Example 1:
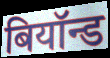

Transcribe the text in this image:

बियॉन्ड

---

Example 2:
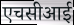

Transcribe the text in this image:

एचसीआई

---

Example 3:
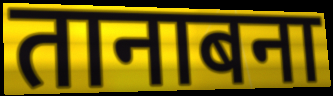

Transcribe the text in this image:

तानाबना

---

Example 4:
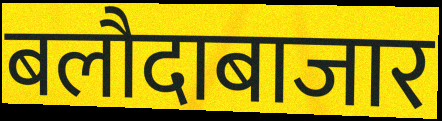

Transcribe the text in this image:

बलौदाबाजार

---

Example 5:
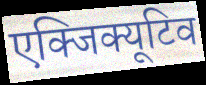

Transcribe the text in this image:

एक्जिक्यूटिव